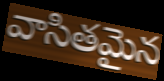
వాసితమైన